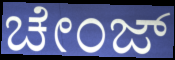
ಚೇಂಜ್